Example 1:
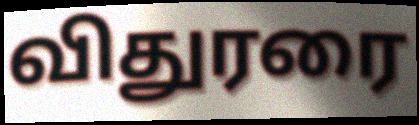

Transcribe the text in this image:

விதுரரை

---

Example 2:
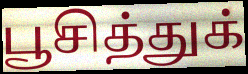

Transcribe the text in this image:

பூசித்துக்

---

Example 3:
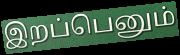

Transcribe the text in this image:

இறப்பெனும்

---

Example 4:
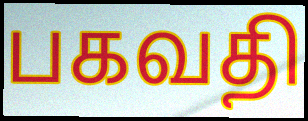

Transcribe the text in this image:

பகவதி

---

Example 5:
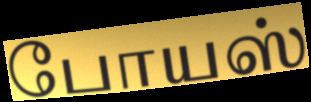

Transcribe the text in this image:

போயஸ்